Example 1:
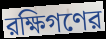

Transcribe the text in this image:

রক্ষিগণের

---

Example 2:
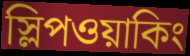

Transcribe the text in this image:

স্লিপওয়াকিং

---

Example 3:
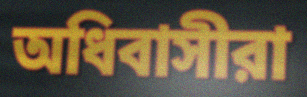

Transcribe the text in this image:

অধিবাসীরা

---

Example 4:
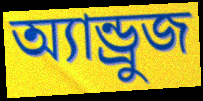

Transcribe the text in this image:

অ্যান্ড্রুজ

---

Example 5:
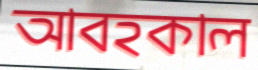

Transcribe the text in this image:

আবহকাল